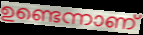
ഉണ്ടെന്നാണ്